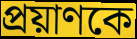
প্রয়াণকে